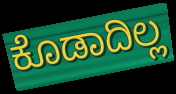
ಕೊಡಾದಿಲ್ಲ